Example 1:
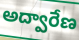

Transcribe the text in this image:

అద్వారేణ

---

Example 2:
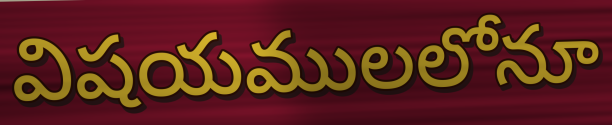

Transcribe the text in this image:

విషయములలోనూ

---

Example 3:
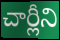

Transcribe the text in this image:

చార్లీని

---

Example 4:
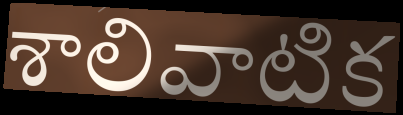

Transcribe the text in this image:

శాలివాటిక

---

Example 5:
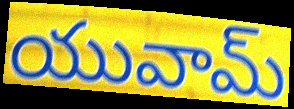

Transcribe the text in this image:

యువామ్